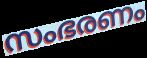
സംഭരണം